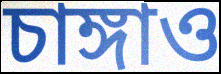
চাঙ্গাও